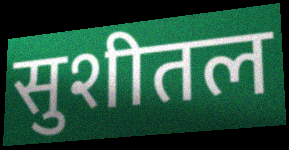
सुशीतल